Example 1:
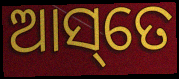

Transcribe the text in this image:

ଆସ୍‌ତେ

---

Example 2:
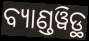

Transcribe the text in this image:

ବ୍ୟାଣ୍ଡୱିଡ୍ଥ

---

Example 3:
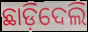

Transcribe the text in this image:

ଛାଡ଼ିଦେଲି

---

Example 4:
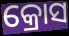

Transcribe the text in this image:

କ୍ରୋସ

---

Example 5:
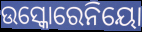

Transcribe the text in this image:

ଉସ୍କୋରେନିୟୋ